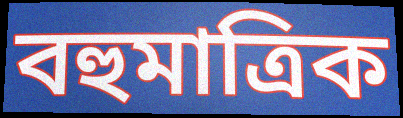
বহুমাত্রিক